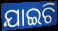
ଯାଇଚି